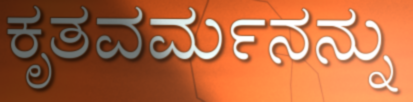
ಕೃತವರ್ಮನನ್ನು